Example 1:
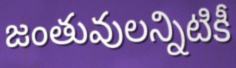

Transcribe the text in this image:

జంతువులన్నిటికీ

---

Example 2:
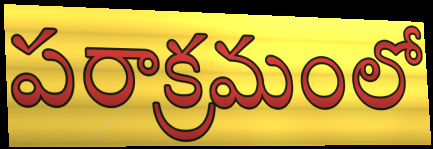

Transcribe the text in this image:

పరాక్రమంలో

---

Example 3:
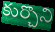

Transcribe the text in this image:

కుర్చొని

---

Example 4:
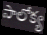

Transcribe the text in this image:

సాలోక్య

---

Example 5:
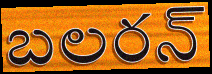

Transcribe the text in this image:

బలరన్